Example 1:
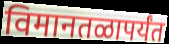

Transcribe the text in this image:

विमानतळापर्यंत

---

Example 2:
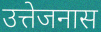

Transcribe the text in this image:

उत्तेजनास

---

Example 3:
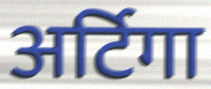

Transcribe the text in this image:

अर्टिगा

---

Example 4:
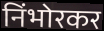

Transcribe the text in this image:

निंभोरकर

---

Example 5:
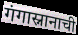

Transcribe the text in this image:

गंगास्नानाची